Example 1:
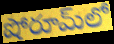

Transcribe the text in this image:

షోరూమ్‌లో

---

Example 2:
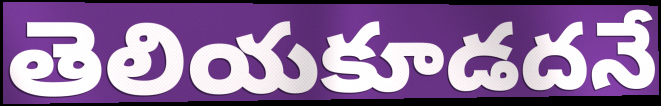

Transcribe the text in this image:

తెలియకూడదనే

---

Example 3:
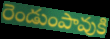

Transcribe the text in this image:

రెండుంపావుకి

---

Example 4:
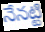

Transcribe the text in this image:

నేనట్టి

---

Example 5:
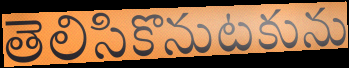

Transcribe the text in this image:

తెలిసికొనుటకును